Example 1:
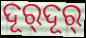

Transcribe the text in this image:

ଦୂର୍‌ଦୂର୍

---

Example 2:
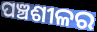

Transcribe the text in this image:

ପଞ୍ଚଶୀଳର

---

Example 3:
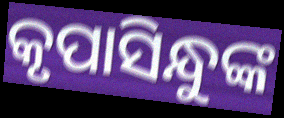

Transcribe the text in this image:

କୃପାସିନ୍ଧୁଙ୍କ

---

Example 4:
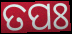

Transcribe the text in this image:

ତପଃ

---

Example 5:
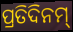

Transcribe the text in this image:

ପ୍ରତିଦିନମ୍